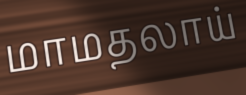
மாமதலாய்